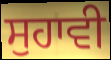
ਸੁਹਾਵੀ